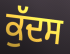
ਕੁੱਦਸ